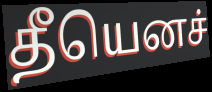
தீயெனச்